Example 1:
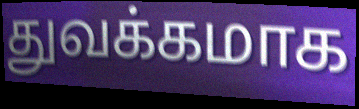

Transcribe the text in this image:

துவக்கமாக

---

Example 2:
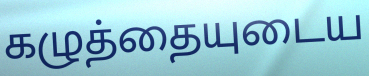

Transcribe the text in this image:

கழுத்தையுடைய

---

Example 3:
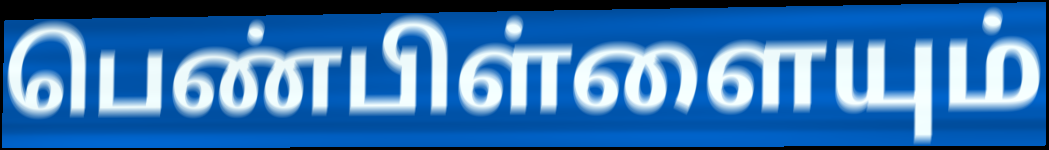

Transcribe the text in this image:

பெண்பிள்ளையும்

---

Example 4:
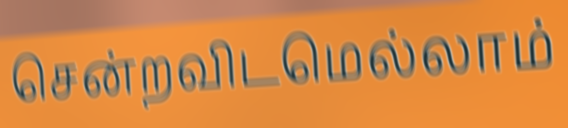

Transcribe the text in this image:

சென்றவிடமெல்லாம்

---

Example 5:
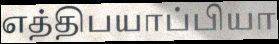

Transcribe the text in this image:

எத்திபயாப்பியா